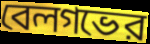
বেলগভের